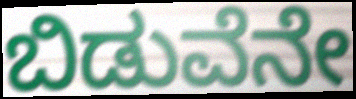
ಬಿಡುವೆನೇ